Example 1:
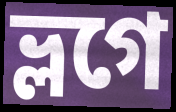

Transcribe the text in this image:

ভ্লগে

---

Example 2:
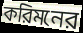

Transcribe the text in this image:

করিমনের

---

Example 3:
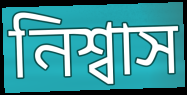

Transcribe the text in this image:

নিশ্বাস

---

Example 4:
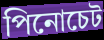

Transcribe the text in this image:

পিনোচেট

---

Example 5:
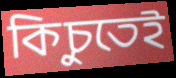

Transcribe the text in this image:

কিচুতেই